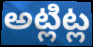
అట్లిట్ల